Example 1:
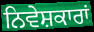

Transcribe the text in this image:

ਨਿਵੇਸ਼ਕਾਰਾਂ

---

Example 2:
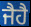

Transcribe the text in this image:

ਜੈਹੈ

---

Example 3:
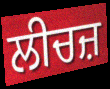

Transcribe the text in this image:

ਲੀਚਜ਼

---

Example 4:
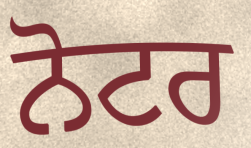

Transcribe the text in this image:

ਨੋਟਰ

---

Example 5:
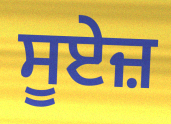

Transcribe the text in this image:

ਸੂਏਜ਼